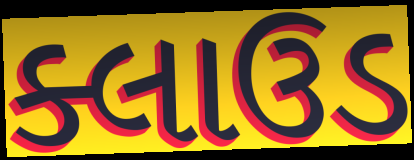
ક્લાઉડ